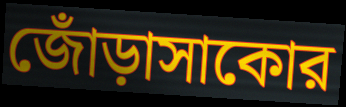
জোঁড়াসাকোর